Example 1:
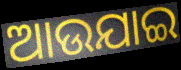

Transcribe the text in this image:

ଆଉଯାଇ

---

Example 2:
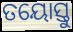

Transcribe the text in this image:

ତୟୋସ୍ତୁ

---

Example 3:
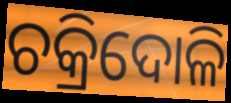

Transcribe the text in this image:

ଚକ୍ରିଦୋଳି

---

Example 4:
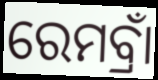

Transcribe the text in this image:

ରେମବ୍ରାଁ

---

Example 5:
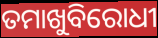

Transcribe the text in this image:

ତମାଖୁବିରୋଧୀ